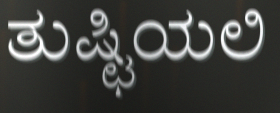
ತುಷ್ಟಿಯಲಿ